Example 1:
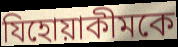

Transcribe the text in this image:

যিহোয়াকীমকে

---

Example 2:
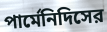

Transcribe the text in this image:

পার্মেনিদিসের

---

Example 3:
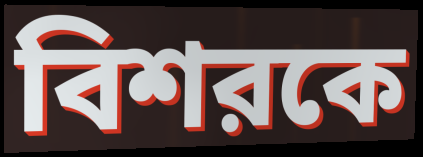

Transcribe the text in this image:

বিশরকে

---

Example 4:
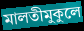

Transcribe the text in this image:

মালতীমুকুলে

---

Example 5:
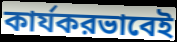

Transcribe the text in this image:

কার্যকরভাবেই